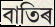
বাতিৰ